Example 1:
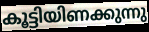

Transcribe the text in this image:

കൂട്ടിയിണക്കുന്നു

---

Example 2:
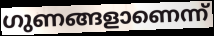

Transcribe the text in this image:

ഗുണങ്ങളാണെന്ന്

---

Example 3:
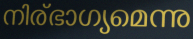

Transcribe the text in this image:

നിര്ഭാഗ്യമെന്നു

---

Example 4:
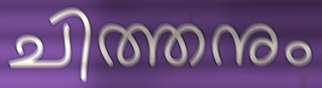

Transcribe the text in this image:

ചിത്തനും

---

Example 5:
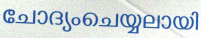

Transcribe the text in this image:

ചോദ്യംചെയ്യലായി